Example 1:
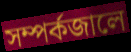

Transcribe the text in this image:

সম্পর্কজালে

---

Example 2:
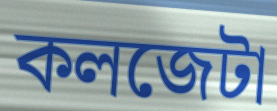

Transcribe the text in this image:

কলজেটা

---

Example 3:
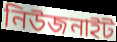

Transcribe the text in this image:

নিউজনাইট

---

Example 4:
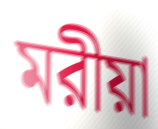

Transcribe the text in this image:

মরীয়া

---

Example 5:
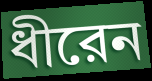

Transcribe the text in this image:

ধীরেন